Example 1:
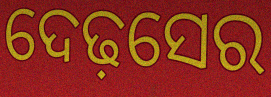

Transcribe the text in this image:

ଦେଢ଼ସେର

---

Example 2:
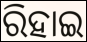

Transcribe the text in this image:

ରିହାଇ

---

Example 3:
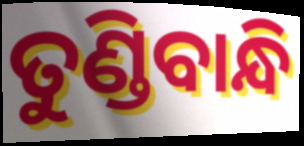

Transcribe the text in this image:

ତୁଣ୍ଡିବାନ୍ଧି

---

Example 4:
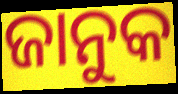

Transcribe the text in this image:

ଜାନୁକ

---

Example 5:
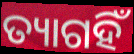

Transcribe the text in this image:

ତ୍ୟାଗହିଁ